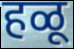
हळू